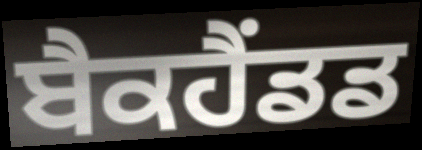
ਬੈਕਹੈਂਡਡ